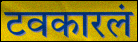
टवकारलं